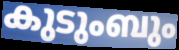
കുടുംബും